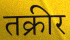
तक्रीर